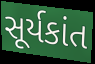
સૂર્યકાંત